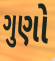
ગુણો